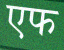
एफ